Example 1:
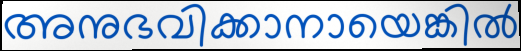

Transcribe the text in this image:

അനുഭവിക്കാനായെങ്കിൽ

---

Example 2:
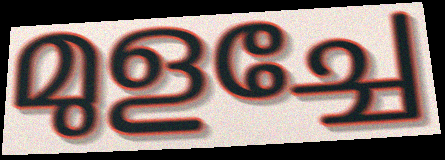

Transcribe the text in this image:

മുളച്ചേ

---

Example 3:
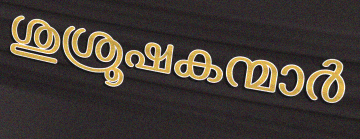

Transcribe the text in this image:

ശുശ്രൂഷകന്മാർ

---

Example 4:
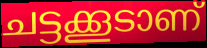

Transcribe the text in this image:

ചട്ടക്കൂടാണ്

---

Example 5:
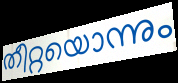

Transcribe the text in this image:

തീറ്റയൊന്നും